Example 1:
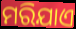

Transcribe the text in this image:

ମରିଯାଏ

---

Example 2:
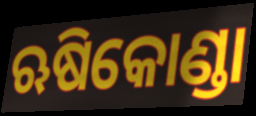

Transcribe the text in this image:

ଋଷିକୋଣ୍ଡା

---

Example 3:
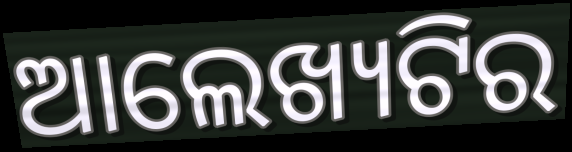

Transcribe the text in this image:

ଆଲେଖ୍ୟଟିର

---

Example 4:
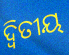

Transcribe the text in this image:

ଦ୍ୱିତୀୟ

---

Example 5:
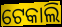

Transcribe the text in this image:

ଟେକାଲି